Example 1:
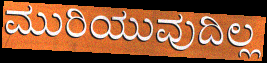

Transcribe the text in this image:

ಮುರಿಯುವುದಿಲ್ಲ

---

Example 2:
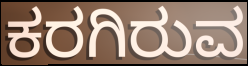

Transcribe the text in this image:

ಕರಗಿರುವ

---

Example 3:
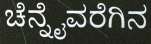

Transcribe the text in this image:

ಚೆನ್ನೈವರೆಗಿನ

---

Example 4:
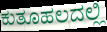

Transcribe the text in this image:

ಕುತೂಹಲದಲ್ಲಿ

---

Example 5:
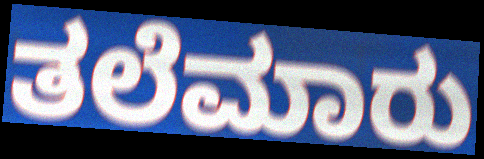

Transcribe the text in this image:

ತಲೆಮಾರು